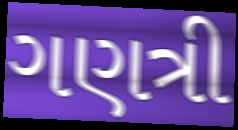
ગણત્રી